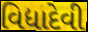
વિદ્યાદેવી